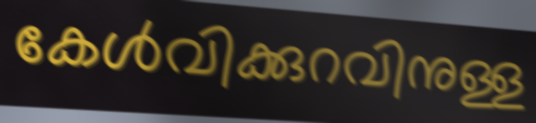
കേൾവിക്കുറവിനുള്ള